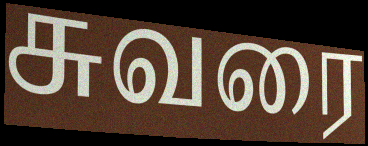
சுவரை